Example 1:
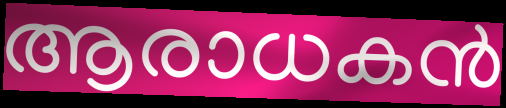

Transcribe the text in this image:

ആരാധകൻ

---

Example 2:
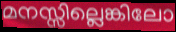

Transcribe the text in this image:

മനസ്സില്ലെങ്കിലോ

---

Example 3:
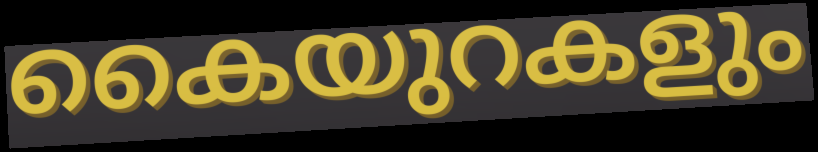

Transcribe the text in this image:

കൈയുറകളും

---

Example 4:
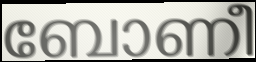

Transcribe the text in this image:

ബോണീ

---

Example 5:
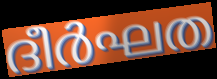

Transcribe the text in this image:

ദീർഘത